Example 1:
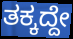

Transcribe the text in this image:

ತಕ್ಕದ್ದೇ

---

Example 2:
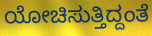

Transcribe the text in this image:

ಯೋಚಿಸುತ್ತಿದ್ದಂತೆ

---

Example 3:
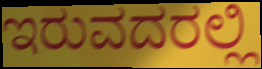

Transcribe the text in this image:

ಇರುವದರಲ್ಲಿ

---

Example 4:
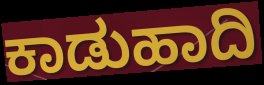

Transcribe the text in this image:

ಕಾಡುಹಾದಿ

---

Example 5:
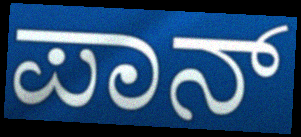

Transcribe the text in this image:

ಪಾನ್